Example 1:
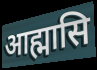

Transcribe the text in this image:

आह्मासि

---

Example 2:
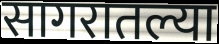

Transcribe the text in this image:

सागरातल्या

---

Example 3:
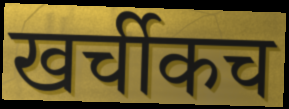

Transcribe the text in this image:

खर्चीकच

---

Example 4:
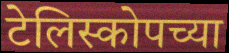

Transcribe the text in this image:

टेलिस्कोपच्या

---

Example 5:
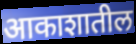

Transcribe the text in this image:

आकाशातील